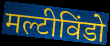
मल्टीविंडो